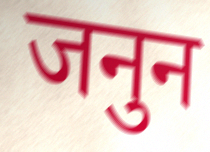
जनुन